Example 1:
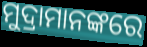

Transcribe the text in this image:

ମୁଦ୍ରାମାନଙ୍କରେ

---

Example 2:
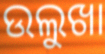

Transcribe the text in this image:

ଉଲୁଖା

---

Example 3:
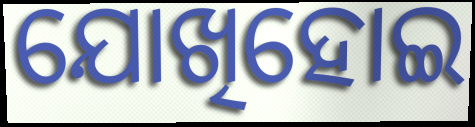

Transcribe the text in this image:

ଯୋଖିହୋଇ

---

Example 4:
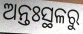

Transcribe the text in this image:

ଅନ୍ତଃସ୍ଥଳରୁ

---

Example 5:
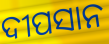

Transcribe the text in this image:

ଦୀପସାନ